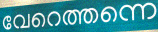
വേറെത്തന്നെ